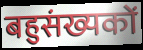
बहुसंख्यकों